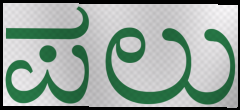
ಪಲು